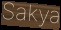
Sakya